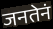
जनतेनं